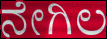
ನೇಗಿಲ